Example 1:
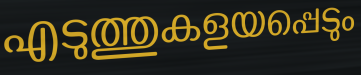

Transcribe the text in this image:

എടുത്തുകളയപ്പെടും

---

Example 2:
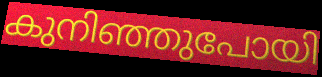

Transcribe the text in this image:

കുനിഞ്ഞുപോയി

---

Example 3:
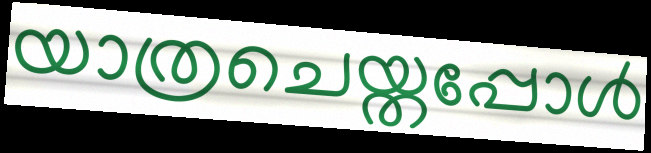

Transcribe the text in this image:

യാത്രചെയ്തപ്പോൾ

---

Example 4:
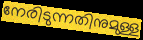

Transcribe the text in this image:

നേരിടുന്നതിനുമുള്ള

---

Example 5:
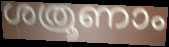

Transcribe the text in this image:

ശത്രൂണാം